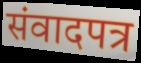
संवादपत्र